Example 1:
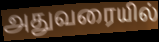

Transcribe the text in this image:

அதுவரையில்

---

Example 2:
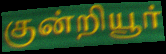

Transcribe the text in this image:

குன்றியூர்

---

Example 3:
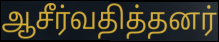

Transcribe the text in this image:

ஆசீர்வதித்தனர்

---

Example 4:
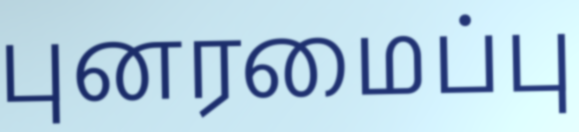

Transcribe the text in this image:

புனரமைப்பு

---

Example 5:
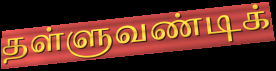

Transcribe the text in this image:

தள்ளுவண்டிக்